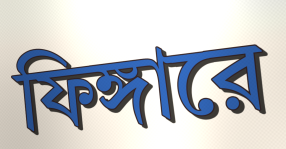
ফিঙ্গারে